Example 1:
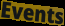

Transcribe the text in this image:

Events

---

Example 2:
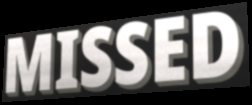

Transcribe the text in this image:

MISSED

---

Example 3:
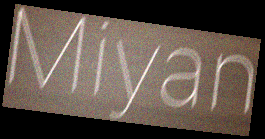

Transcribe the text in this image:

Miyan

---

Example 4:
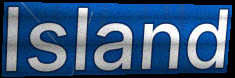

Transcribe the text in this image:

Island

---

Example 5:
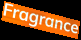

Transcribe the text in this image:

Fragrance